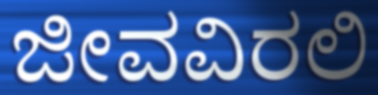
ಜೀವವಿರಲಿ